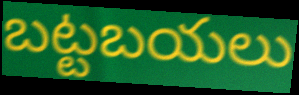
బట్టబయలు